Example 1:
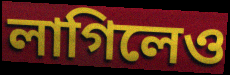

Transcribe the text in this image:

লাগিলেও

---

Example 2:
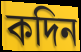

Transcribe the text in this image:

কদিন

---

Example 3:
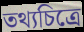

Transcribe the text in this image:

তথ্যচিত্রে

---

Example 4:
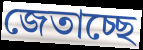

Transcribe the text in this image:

জেতাচ্ছে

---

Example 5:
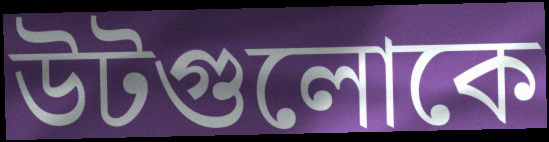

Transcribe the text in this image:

উটগুলোকে